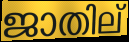
ജാതില്